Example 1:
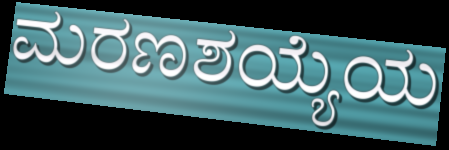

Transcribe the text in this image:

ಮರಣಶಯ್ಯೆಯ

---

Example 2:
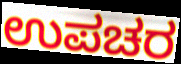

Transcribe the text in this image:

ಉಪಚರ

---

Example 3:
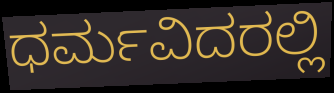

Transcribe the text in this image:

ಧರ್ಮವಿದರಲ್ಲಿ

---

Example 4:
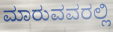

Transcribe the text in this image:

ಮಾರುವವರಲ್ಲಿ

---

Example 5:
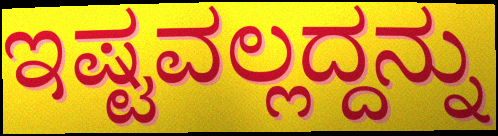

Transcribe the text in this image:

ಇಷ್ಟವಲ್ಲದ್ದನ್ನು